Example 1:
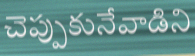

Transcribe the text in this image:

చెప్పుకునేవాడిని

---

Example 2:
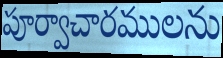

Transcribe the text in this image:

పూర్వాచారములను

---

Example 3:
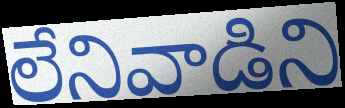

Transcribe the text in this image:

లేనివాడిని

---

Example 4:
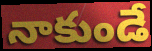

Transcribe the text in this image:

నాకుండే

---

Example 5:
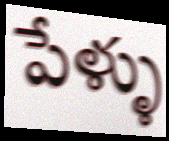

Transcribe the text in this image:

పేళ్ళు